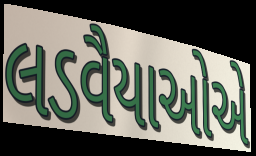
લડવૈયાઓએ